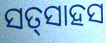
ସତ୍‌ସାହସ